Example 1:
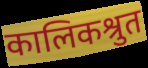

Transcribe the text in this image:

कालिकश्रुत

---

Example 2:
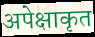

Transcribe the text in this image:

अपेक्षाकृत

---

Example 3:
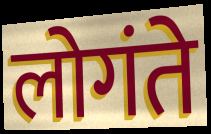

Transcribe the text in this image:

लोगंते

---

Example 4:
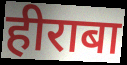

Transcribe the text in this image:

हीराबा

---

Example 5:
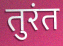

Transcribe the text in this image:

तुरंत